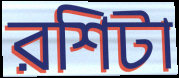
রশিটা